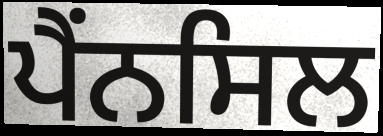
ਪੈਂਨਸਿਲ